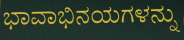
ಭಾವಾಭಿನಯಗಳನ್ನು